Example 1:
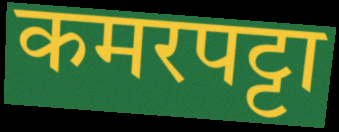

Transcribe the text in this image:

कमरपट्टा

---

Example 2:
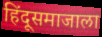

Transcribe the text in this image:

हिंदूसमाजाला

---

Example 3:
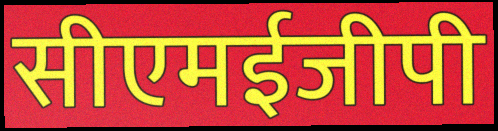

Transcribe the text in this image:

सीएमईजीपी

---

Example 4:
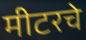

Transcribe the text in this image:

मीटरचे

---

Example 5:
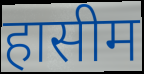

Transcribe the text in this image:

हासीम